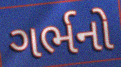
ગર્ભનો